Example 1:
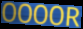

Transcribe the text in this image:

OOOOR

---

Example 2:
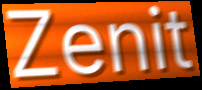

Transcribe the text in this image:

Zenit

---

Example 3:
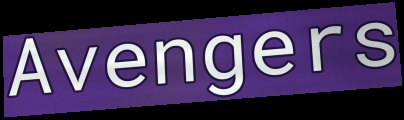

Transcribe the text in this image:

Avengers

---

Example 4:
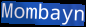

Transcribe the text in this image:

Mombayn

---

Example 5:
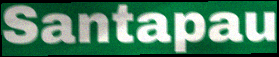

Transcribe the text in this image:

Santapau